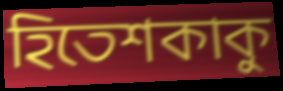
হিতেশকাকু